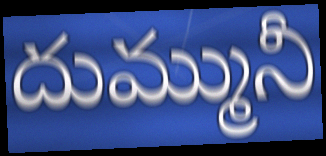
దుమ్మునీ